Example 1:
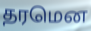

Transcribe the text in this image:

தரமென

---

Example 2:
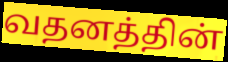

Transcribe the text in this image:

வதனத்தின்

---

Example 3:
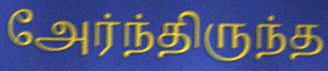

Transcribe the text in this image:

அேர்ந்திருந்த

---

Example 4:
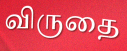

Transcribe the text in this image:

விருதை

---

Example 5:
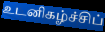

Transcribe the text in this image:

உடனிகழ்ச்சிப்